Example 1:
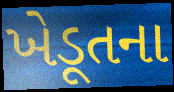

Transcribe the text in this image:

ખેડૂતના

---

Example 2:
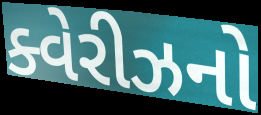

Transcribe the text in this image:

ક્વેરીઝનો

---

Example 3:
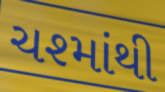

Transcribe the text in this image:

ચશ્માંથી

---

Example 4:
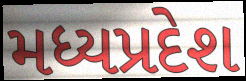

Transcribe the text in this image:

મધ્યપ્રદેશ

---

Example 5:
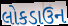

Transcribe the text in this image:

લોકડાઉન